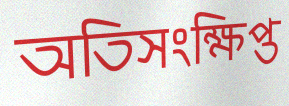
অতিসংক্ষিপ্ত